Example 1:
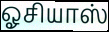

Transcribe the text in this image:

ஓசியாஸ்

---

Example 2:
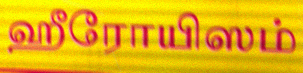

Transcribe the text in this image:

ஹீரோயிஸம்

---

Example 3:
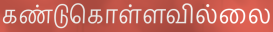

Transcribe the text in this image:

கண்டுகொள்ளவில்லை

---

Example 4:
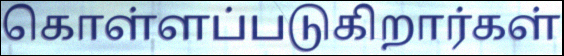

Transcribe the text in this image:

கொள்ளப்படுகிறார்கள்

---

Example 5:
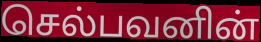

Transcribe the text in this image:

செல்பவனின்